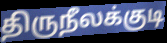
திருநீலக்குடி